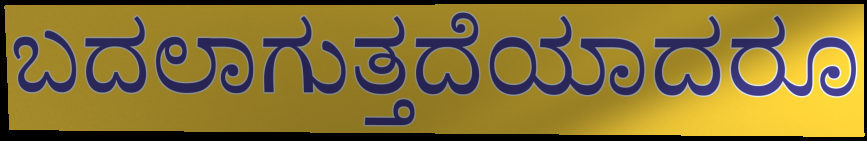
ಬದಲಾಗುತ್ತದೆಯಾದರೂ